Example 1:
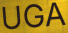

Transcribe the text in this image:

UGA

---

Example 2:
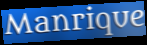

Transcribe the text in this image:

Manrique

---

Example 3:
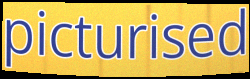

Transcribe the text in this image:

picturised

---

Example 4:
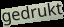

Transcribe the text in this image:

gedrukt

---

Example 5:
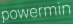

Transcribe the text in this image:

powermin